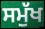
ਸਮੁੱਖ